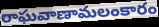
రాఘవాణామలంకారం